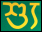
শ্যু